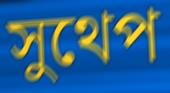
সুথেপ